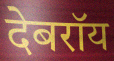
देबरॉय